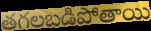
తగలబడిపోతాయి